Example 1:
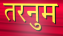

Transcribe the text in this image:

तरनुम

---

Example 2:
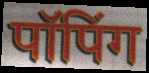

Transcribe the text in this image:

पॉपिंग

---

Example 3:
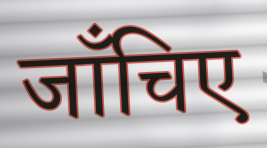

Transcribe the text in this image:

जाँचिए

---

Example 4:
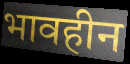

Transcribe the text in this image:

भावहीन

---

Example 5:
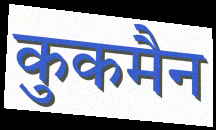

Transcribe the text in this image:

कुकमैन